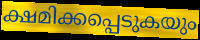
ക്ഷമിക്കപ്പെടുകയും